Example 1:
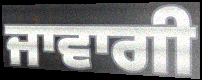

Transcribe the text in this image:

ਜਾਵਾਗੀ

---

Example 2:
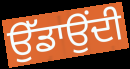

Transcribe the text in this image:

ਉੱਡਾਉਂਦੀ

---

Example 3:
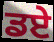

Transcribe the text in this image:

ਡਏ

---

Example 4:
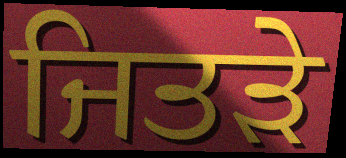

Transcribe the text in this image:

ਜਿਤੜੇ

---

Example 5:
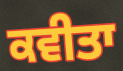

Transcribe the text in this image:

ਕਵੀਤਾ